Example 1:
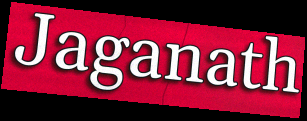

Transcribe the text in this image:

Jaganath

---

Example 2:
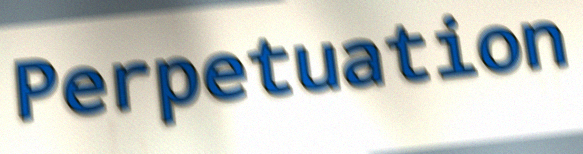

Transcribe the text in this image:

Perpetuation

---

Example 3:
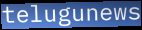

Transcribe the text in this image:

telugunews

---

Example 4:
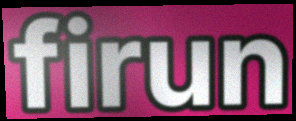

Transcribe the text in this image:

firun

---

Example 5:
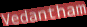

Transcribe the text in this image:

Vedantham